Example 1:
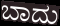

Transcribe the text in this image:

ಬಾದು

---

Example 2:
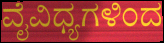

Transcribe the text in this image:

ವೈವಿಧ್ಯಗಳಿಂದ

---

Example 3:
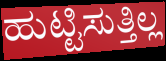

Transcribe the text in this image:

ಹುಟ್ಟಿಸುತ್ತಿಲ್ಲ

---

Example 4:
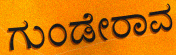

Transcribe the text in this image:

ಗುಂಡೇರಾವ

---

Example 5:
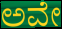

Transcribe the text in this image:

ಅವೇ